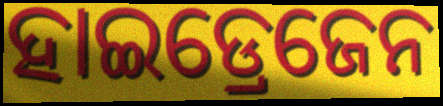
ହାଇଡ୍ରେଜେନ